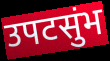
उपटसुंभ